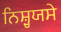
ਨਿਸ਼੍ਚਯਸੇ